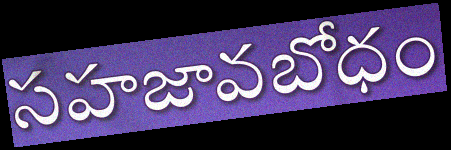
సహజావబోధం